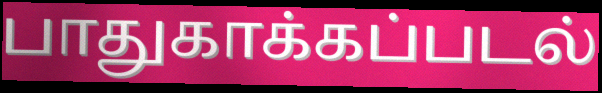
பாதுகாக்கப்படல்